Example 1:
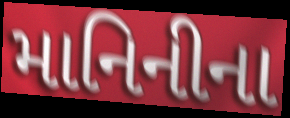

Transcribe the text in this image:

માનિનીના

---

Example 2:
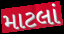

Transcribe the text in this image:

માટલાં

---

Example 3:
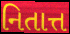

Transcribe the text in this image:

નિતાત્ત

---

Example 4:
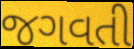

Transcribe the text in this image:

જગવતી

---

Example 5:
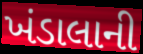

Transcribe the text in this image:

ખંડાલાની